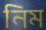
নিম